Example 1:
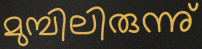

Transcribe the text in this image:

മുമ്പിലിരുന്നു്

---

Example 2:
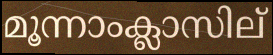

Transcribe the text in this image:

മൂന്നാംക്ലാസില്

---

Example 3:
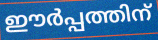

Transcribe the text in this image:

ഈർപ്പത്തിന്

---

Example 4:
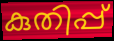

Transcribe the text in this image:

കുതിപ്പ്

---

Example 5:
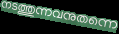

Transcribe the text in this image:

നടത്തുന്നവനുതന്നെ